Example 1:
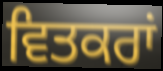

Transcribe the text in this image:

ਵਿਤਕਰਾਂ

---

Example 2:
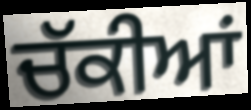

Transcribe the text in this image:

ਚੱਕੀਆਂ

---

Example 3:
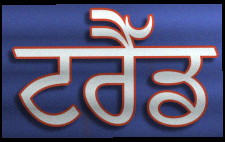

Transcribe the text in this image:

ਟਰੈੱਡ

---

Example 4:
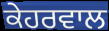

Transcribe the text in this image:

ਕੇਹਰਵਾਲ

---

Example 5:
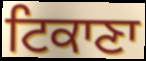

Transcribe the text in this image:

ਟਿਕਾਣਾ